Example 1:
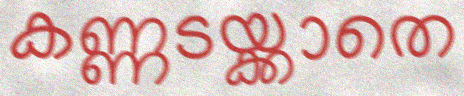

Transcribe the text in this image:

കണ്ണടയ്ക്കാതെ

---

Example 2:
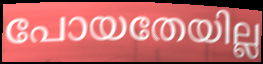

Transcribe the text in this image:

പോയതേയില്ല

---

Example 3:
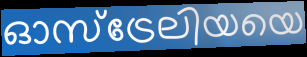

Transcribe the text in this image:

ഓസ്ട്രേലിയയെ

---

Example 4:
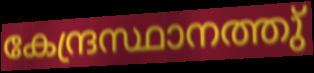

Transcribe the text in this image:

കേന്ദ്രസ്ഥാനത്തു്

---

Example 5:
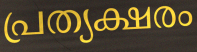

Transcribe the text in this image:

പ്രത്യക്ഷരം